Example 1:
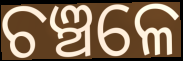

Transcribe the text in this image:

ଚଞ୍ଚଳେ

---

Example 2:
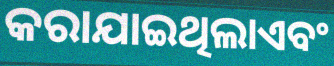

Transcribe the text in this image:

କରାଯାଇଥିଲାଏବଂ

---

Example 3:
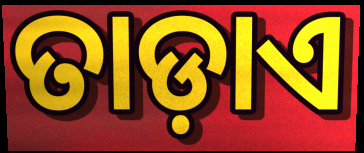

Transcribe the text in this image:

ତାଡ଼ାଏ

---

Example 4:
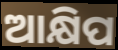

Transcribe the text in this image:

ଆକ୍ଷିପ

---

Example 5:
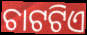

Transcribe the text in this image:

ଚାଟଟିଏ